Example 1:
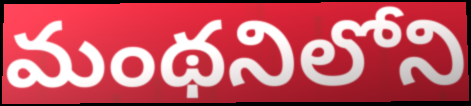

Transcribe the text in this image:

మంథనిలోని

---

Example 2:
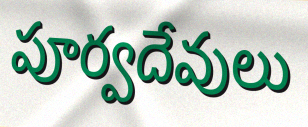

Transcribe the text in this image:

పూర్వదేవులు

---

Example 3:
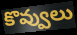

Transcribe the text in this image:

కొవ్వులు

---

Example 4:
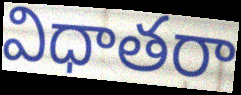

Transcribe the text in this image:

విధాతరా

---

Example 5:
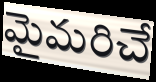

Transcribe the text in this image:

మైమరిచే